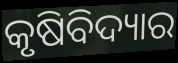
କୃଷିବିଦ୍ୟାର